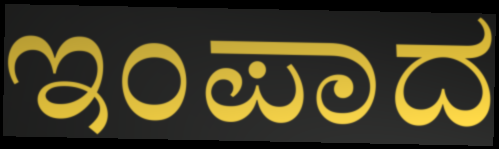
ಇಂಪಾದ